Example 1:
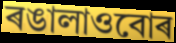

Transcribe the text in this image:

ৰঙালাওবোৰ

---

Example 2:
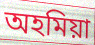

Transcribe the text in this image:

অহমিয়া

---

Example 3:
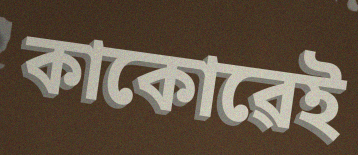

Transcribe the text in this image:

কাকোৱেই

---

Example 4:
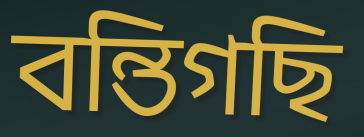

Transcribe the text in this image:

বন্তিগছি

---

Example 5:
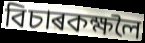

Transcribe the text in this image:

বিচাৰকক্ষলৈ